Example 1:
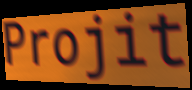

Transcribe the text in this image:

Projit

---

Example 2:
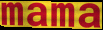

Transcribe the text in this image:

mama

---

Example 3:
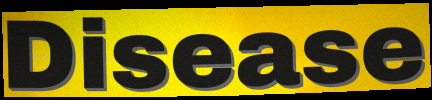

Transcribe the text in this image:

Disease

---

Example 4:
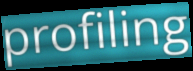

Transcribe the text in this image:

profiling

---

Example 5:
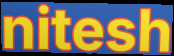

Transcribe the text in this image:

nitesh